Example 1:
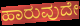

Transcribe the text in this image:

ಹಾರುವುದೇ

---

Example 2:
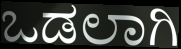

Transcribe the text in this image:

ಒಡಲಾಗಿ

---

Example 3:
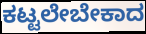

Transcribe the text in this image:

ಕಟ್ಟಲೇಬೇಕಾದ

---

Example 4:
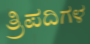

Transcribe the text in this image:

ತ್ರಿಪದಿಗಳ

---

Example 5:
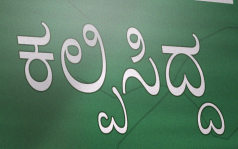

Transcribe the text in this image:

ಕಲ್ಪಿಸಿದ್ದ